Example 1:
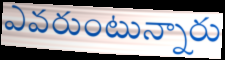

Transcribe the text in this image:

ఎవరుంటున్నారు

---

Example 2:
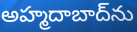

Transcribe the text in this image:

అహ్మదాబాద్‌ను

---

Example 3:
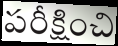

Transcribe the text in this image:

పరీక్షించి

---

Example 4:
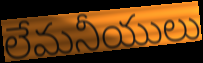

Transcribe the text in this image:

లేమనీయులు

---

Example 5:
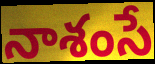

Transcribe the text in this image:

నాశంసే